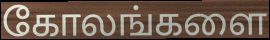
கோலங்களை